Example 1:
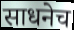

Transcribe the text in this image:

साधनेच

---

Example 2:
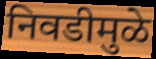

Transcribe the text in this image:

निवडीमुळे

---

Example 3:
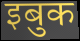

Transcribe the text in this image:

इबुक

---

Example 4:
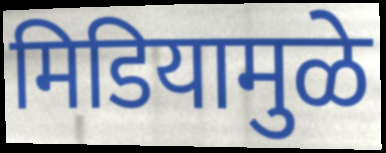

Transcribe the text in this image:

मिडियामुळे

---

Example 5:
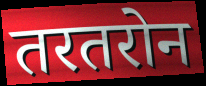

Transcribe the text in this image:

तरतरोन